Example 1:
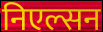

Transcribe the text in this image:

निएल्सन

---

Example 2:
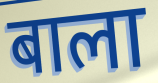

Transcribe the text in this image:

बाला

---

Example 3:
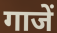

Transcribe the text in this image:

गाजें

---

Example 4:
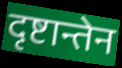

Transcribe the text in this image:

दृष्टान्तेन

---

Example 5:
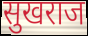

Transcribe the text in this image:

सुखराज